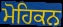
ਮੋਹਿਕਨ